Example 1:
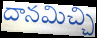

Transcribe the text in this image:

దానమిచ్చి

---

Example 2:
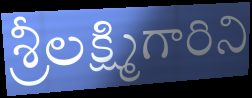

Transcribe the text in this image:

శ్రీలక్ష్మిగారిని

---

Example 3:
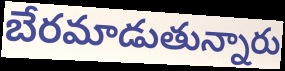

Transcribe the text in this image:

బేరమాడుతున్నారు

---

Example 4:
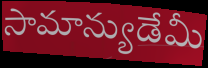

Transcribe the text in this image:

సామాన్యుడేమీ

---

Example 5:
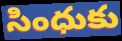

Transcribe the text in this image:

సింధుకు